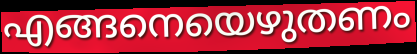
എങ്ങനെയെഴുതണം